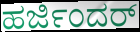
ಹರ್ಜಿಂದರ್